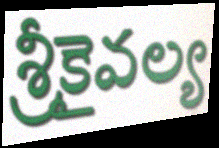
శ్రీకైవల్య